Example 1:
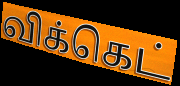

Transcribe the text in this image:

விக்கெட்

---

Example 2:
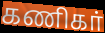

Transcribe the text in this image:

கணிகர்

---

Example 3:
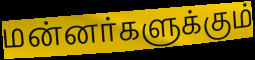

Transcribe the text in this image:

மன்னர்களுக்கும்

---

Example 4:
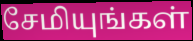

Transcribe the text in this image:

சேமியுங்கள்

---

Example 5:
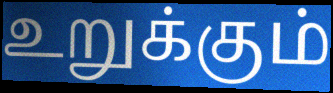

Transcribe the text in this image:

உறுக்கும்